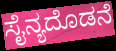
ಸೈನ್ಯದೊಡನೆ